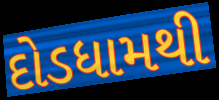
દોડધામથી